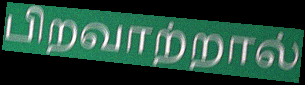
பிறவாற்றால்